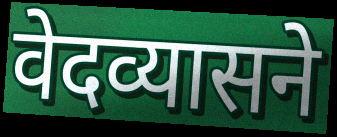
वेदव्यासने